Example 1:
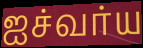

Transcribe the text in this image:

ஐச்வர்ய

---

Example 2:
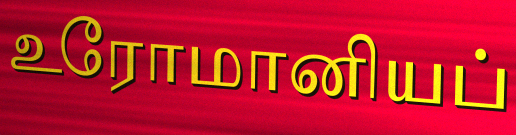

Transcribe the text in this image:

உரோமானியப்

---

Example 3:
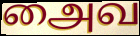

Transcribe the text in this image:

அைவ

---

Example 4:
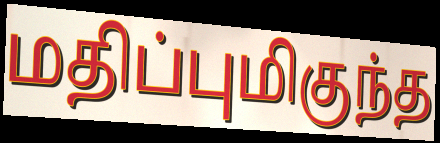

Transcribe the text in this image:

மதிப்புமிகுந்த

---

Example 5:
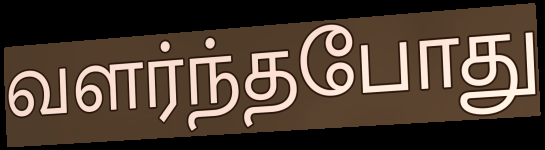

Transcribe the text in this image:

வளர்ந்தபோது